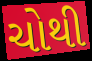
ચોથી